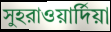
সুহরাওয়ার্দিয়া